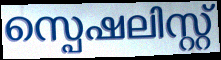
സ്പെഷലിസ്റ്റ്